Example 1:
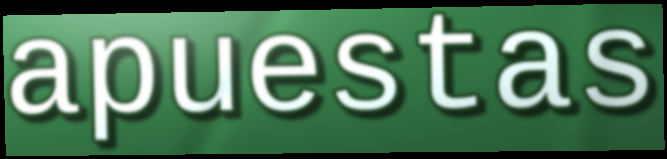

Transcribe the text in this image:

apuestas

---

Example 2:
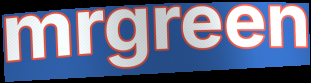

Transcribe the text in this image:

mrgreen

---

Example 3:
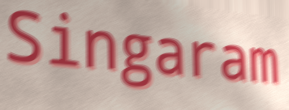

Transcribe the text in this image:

Singaram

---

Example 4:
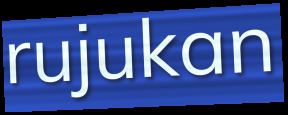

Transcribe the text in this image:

rujukan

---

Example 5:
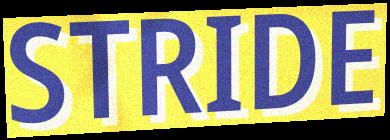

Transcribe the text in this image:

STRIDE